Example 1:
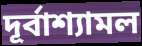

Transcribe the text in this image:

দূর্বাশ্যামল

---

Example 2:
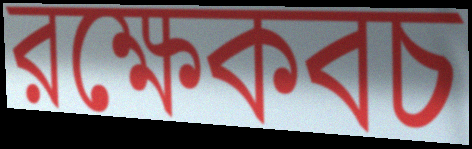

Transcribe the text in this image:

রক্ষেকবচ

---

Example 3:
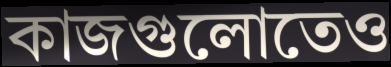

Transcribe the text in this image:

কাজগুলোতেও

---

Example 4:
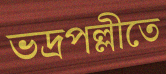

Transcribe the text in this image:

ভদ্রপল্লীতে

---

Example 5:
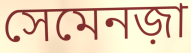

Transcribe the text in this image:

সেমেনজ়া